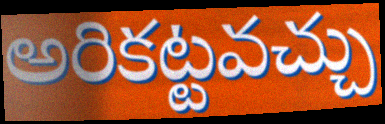
అరికట్టవచ్చు